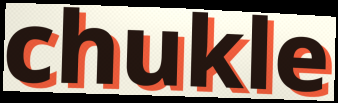
chukle